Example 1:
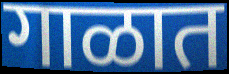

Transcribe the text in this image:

गाळात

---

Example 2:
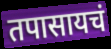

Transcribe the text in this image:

तपासायचं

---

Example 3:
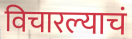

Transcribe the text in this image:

विचारल्याचं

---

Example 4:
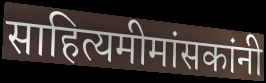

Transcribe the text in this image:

साहित्यमीमांसकांनी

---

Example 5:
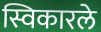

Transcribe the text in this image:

स्विकारले